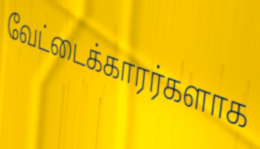
வேட்டைக்காரர்களாக